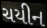
ચયીન